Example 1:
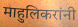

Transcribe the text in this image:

माहुलिकरांनी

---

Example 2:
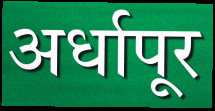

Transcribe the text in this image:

अर्धापूर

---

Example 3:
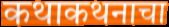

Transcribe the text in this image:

कथाकथनाचा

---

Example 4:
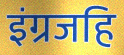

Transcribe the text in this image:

इंग्रजहि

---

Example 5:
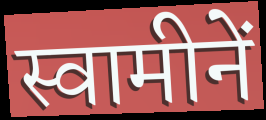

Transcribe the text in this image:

स्वामीनें